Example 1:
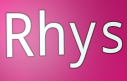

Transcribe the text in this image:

Rhys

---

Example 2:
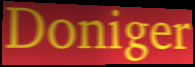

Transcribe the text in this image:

Doniger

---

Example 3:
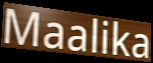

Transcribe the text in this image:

Maalika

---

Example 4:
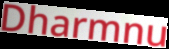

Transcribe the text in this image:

Dharmnu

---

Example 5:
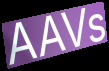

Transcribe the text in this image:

AAVs